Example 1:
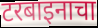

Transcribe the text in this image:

टरबाइनाचा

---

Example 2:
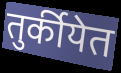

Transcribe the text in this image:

तुर्कीयेत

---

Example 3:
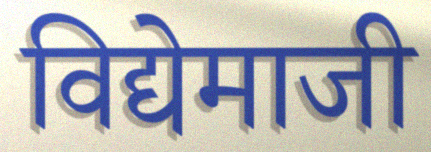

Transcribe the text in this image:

विद्येमाजी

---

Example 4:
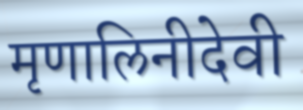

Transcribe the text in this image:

मृणालिनीदेवी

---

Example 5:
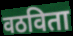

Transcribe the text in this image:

वठविता